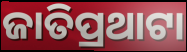
ଜାତିପ୍ରଥାଟା